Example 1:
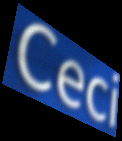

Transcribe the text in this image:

Ceci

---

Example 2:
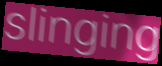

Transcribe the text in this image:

slinging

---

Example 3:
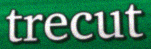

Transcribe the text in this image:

trecut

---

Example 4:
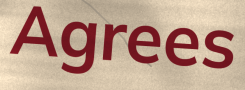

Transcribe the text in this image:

Agrees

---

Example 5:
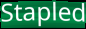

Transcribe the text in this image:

Stapled